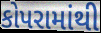
કોપરામાંથી